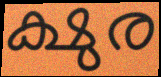
ക്ഷുര